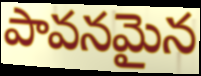
పావనమైన